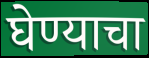
घेण्याचा